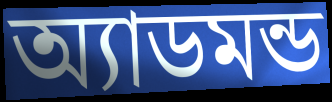
অ্যাডমন্ড